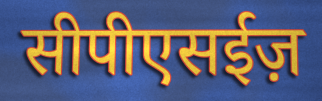
सीपीएसईज़